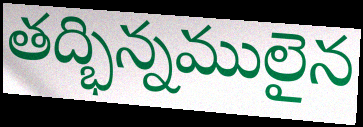
తద్భిన్నములైన